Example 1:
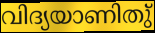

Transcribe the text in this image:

വിദ്യയാണിതു്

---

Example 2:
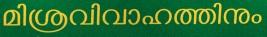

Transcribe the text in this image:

മിശ്രവിവാഹത്തിനും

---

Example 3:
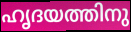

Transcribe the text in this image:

ഹൃദയത്തിനു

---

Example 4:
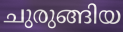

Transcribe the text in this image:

ചുരുങ്ങിയ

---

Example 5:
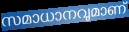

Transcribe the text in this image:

സമാധാനവുമാണ്